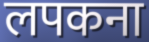
लपकना